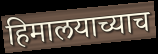
हिमालयाच्याच